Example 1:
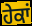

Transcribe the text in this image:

ਹੇਕਾਂ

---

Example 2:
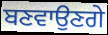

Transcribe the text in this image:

ਬਣਵਾਉਣਗੇ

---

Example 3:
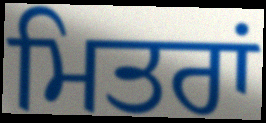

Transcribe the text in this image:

ਮਿਤਰਾਂ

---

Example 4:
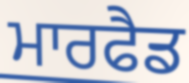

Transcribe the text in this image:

ਮਾਰਫੈਡ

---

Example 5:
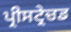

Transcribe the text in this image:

ਪ੍ਰੀਸਟ੍ਰੇਚਡ